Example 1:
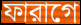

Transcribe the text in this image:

ফারাগে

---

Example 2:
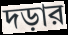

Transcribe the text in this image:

দড়ার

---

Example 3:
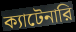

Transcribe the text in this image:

ক্যাটেনারি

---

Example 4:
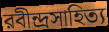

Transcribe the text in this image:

রবীন্দ্রসাহিত্য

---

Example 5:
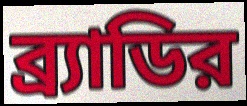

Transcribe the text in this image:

ব্র্যাডির